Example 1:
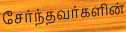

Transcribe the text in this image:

சேர்ந்தவர்களின்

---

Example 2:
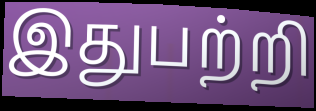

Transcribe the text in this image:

இதுபற்றி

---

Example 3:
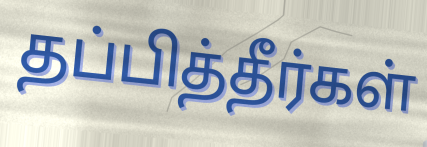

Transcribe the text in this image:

தப்பித்தீர்கள்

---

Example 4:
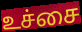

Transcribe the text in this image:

உச்சை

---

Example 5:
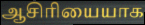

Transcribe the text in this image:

ஆசிரியையாக